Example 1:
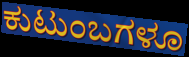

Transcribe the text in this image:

ಕುಟುಂಬಗಳೂ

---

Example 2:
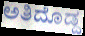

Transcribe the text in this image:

ಅತಿದೊಡ್ದ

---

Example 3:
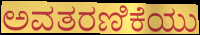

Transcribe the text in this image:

ಅವತರಣಿಕೆಯು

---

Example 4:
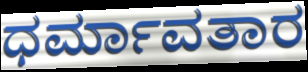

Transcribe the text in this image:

ಧರ್ಮಾವತಾರ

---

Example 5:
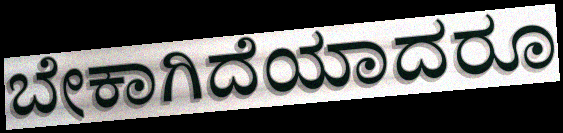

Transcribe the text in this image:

ಬೇಕಾಗಿದೆಯಾದರೂ